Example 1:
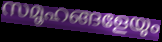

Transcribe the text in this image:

സമൂഹങ്ങളേയും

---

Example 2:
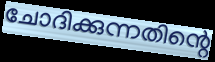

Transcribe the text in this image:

ചോദിക്കുന്നതിന്റെ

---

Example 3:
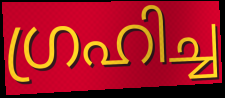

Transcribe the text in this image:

ഗ്രഹിച്ച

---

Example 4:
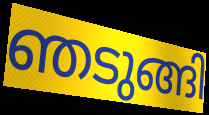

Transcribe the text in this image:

ഞടുങ്ങി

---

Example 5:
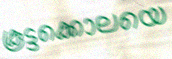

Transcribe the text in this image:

കൂട്ടക്കൊലയെ